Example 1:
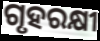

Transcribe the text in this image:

ଗୃହରକ୍ଷୀ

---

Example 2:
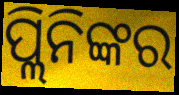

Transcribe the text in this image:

ପ୍ଲିନିଙ୍କର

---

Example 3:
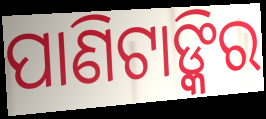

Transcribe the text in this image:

ପାଣିଟାଙ୍କିର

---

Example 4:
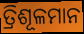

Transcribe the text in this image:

ତ୍ରିଶୂଳମାନ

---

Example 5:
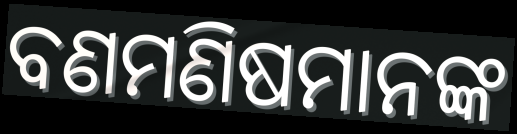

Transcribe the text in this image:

ବଣମଣିଷମାନଙ୍କ